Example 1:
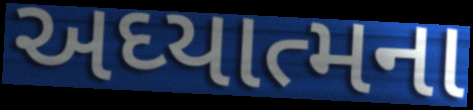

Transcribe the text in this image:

અઘ્યાત્મના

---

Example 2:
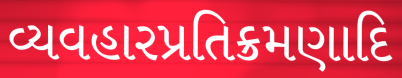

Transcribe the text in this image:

વ્યવહારપ્રતિક્રમણાદિ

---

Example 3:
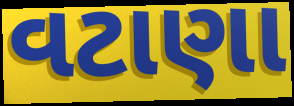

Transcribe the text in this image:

વટાણા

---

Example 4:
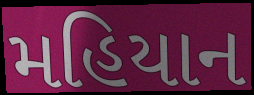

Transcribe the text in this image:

મહિયાન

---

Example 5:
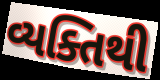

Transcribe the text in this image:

વ્યક્તિથી